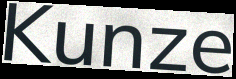
Kunze